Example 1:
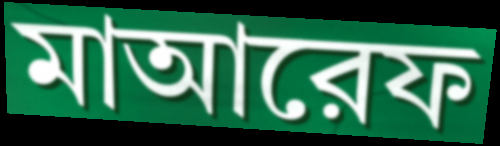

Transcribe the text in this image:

মাআরেফ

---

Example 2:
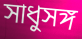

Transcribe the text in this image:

সাধুসঙ্গ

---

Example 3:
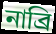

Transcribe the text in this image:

নাব্রি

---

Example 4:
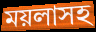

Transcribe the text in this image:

ময়লাসহ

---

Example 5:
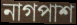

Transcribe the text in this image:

নাগপাশ